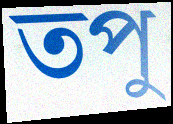
তপু